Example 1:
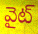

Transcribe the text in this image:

వైట్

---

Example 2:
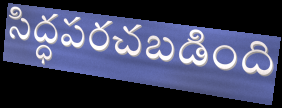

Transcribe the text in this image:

సిద్ధపరచబడింది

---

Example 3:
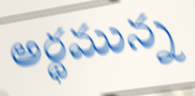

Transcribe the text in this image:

అర్థమున్న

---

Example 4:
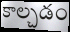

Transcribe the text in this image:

కాల్చడం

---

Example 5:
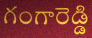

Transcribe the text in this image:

గంగారెడ్డి